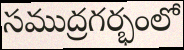
సముద్రగర్భంలో